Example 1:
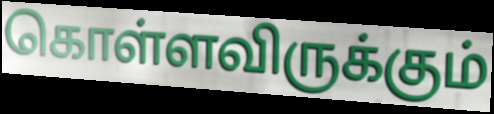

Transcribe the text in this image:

கொள்ளவிருக்கும்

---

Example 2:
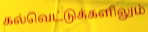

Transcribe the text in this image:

கல்வெட்டுக்களிலும்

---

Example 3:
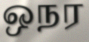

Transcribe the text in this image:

ஒநர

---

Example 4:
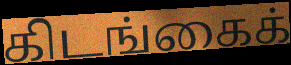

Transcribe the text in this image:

கிடங்கைக்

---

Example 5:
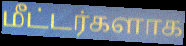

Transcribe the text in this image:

மீட்டர்களாக